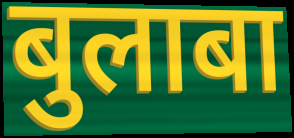
बुलाबा